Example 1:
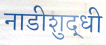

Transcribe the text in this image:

नाडीशुद्धी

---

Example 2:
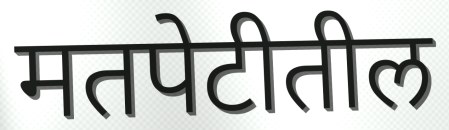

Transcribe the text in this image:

मतपेटीतील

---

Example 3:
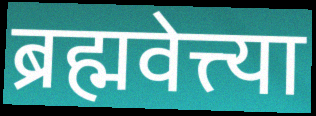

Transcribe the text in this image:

ब्रह्मवेत्त्या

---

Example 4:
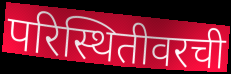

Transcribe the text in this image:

परिस्थितीवरची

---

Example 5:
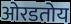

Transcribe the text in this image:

ओरडतोय